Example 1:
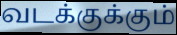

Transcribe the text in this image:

வடக்குக்கும்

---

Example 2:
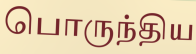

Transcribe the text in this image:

பொருந்திய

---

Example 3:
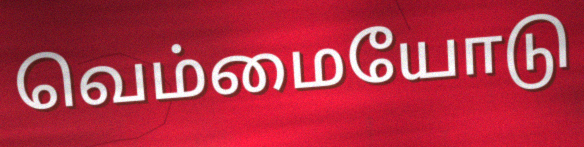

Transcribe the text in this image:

வெம்மையோடு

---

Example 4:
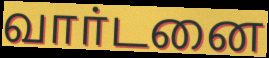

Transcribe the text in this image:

வார்டனை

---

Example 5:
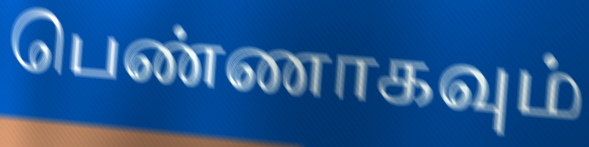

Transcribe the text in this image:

பெண்ணாகவும்